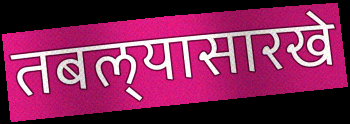
तबल्यासारखे